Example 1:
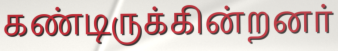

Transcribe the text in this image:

கண்டிருக்கின்றனர்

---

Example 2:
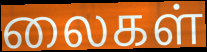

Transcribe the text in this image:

லைகள்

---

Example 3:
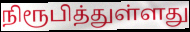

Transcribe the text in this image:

நிரூபித்துள்ளது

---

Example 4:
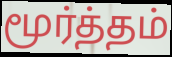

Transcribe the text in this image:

மூர்த்தம்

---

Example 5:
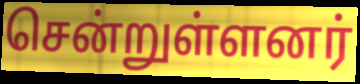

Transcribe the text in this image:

சென்றுள்ளனர்